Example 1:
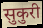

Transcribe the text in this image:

सुकुरी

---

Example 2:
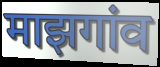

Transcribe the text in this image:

माझगांव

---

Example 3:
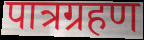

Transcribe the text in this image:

पात्रग्रहण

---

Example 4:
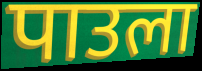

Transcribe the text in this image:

पाउला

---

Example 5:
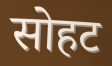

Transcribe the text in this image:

सोहट